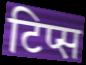
टिप्‍स